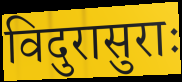
विदुरासुराः